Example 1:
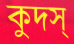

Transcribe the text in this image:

কুদস্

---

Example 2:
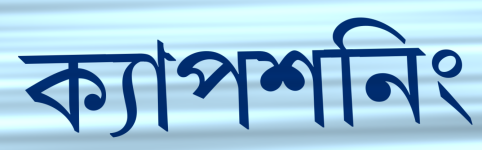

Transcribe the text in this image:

ক্যাপশনিং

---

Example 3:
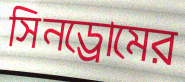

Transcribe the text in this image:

সিনড্রোমের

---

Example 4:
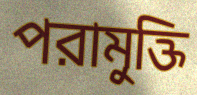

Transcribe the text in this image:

পরামুক্তি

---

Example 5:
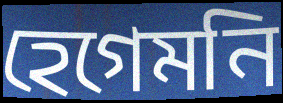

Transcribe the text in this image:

হেগেমনি